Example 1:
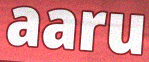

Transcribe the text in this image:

aaru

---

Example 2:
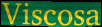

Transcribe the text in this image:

Viscosa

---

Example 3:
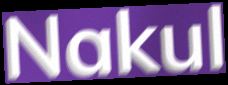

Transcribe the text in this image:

Nakul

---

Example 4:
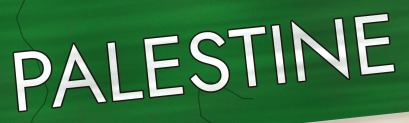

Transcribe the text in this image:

PALESTINE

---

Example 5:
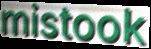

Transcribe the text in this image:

mistook